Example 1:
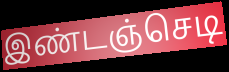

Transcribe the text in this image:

இண்டஞ்செடி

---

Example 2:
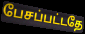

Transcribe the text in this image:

பேசப்பட்டதே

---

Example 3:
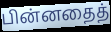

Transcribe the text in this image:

பின்னதைத்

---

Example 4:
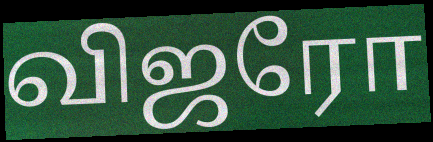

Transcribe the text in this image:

விஜரோ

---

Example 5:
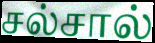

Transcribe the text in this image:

சல்சால்